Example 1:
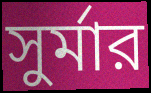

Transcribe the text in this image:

সুর্মার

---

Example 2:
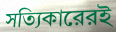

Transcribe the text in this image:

সত্যিকারেরই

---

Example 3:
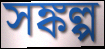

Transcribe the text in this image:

সঙ্কল্প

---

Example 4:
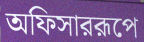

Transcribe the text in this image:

অফিসাররূপে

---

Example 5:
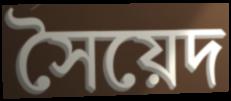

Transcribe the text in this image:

সৈয়েদ